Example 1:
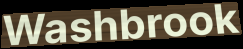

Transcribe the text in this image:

Washbrook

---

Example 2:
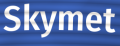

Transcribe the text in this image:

Skymet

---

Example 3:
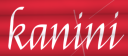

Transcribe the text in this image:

kanini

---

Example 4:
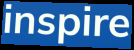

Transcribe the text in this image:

inspire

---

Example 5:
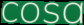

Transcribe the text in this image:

cosa